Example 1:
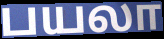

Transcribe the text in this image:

பயலா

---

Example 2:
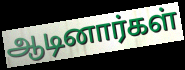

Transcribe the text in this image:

ஆடினார்கள்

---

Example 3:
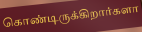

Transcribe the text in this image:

கொண்டிருக்கிறார்களா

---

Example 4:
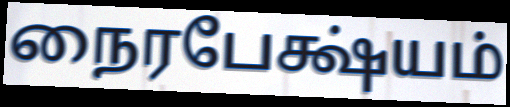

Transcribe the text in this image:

நைரபேக்ஷ்யம்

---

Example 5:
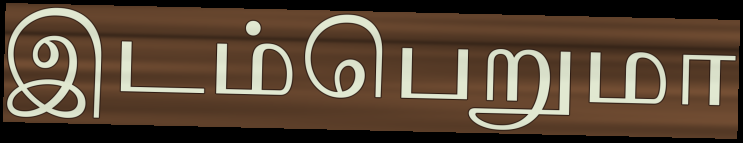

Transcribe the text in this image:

இடம்பெறுமா